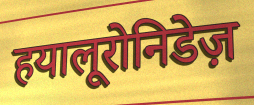
हयालूरोनिडेज़